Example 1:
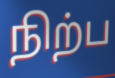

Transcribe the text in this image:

நிற்ப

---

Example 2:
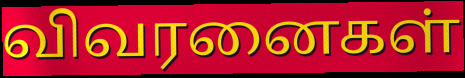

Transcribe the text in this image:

விவரனைகள்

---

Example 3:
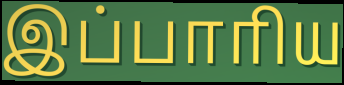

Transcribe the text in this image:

இப்பாரிய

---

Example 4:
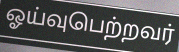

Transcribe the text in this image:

ஓய்வுபெற்றவர்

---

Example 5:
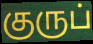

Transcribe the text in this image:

குருப்